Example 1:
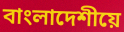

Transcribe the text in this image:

বাংলাদেশীয়ে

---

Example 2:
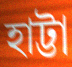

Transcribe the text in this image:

হাট্টা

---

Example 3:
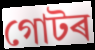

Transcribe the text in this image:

গোটৰ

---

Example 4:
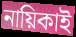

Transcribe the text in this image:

নায়িকাই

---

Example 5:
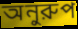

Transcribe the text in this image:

অনুৰুপ